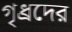
গৃধ্রদের